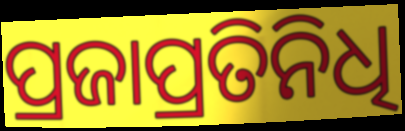
ପ୍ରଜାପ୍ରତିନିଧି